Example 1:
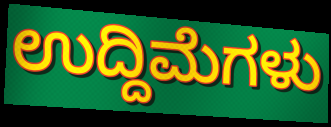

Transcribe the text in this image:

ಉದ್ದಿಮೆಗಳು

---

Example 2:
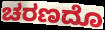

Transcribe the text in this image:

ಚರಣದೊ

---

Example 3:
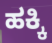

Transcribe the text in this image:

ಹಕ್ಕಿ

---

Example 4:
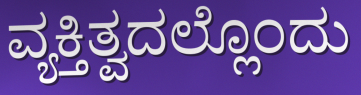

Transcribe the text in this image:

ವ್ಯಕ್ತಿತ್ವದಲ್ಲೊಂದು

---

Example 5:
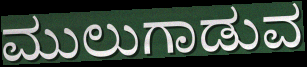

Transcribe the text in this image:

ಮುಲುಗಾಡುವ